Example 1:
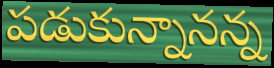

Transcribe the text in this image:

పడుకున్నానన్న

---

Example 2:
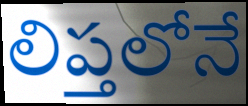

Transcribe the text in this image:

లిప్తలోనే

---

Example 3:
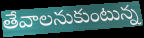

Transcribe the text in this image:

తేవాలనుకుంటున్న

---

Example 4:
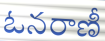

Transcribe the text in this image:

ఓనరాణీ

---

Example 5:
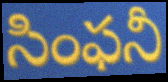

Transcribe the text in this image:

సింఫనీ